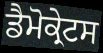
ਡੈਮੋਕ੍ਰੇਟਸ